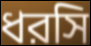
ধরসি